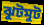
ঝুটমুট